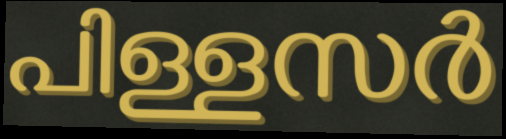
പിള്ളസർ